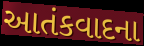
આતંકવાદના